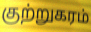
குற்றுகரம்